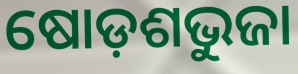
ଷୋଡ଼ଶଭୁଜା